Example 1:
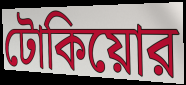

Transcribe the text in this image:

টোকিয়োর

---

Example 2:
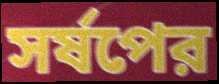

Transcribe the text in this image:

সর্ষপের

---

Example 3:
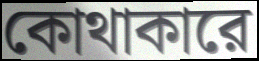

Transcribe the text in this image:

কোথাকারে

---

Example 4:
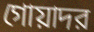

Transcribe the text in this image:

গোয়াদর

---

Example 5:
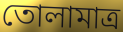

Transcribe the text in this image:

তোলামাত্র